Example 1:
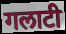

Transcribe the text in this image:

गलाटी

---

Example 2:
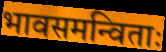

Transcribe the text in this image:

भावसमन्विताः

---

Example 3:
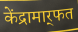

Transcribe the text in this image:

केंद्रामार्फत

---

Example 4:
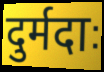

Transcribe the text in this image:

दुर्मदाः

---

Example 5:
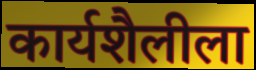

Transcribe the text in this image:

कार्यशैलीला